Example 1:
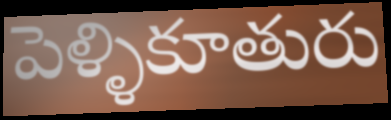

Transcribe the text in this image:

పెళ్ళికూతురు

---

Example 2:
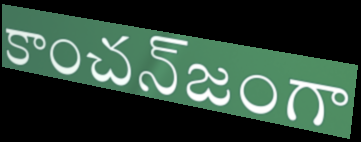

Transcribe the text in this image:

కాంచన్‌జంగా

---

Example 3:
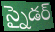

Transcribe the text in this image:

స్నైడర్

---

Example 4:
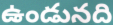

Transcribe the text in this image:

ఉండునది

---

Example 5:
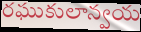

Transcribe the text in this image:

రఘుకులాన్వయ